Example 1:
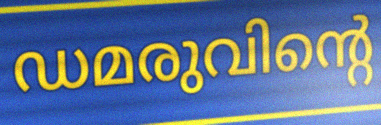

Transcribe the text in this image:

ഡമരുവിന്റെ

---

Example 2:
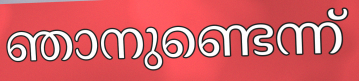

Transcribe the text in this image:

ഞാനുണ്ടെന്ന്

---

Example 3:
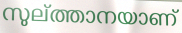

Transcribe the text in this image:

സുല്ത്താനയാണ്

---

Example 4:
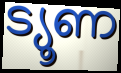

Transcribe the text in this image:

ട്യൂണ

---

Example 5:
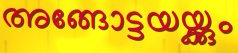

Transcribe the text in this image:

അങ്ങോട്ടയയ്ക്കും